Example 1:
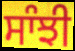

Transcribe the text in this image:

ਸਾੰਝੀ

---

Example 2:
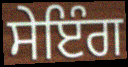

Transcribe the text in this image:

ਸੇਇੰਗ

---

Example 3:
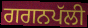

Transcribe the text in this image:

ਗਗਨਪੱਲੀ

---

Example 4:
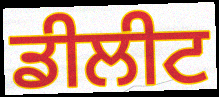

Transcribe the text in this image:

ਡੀਲੀਟ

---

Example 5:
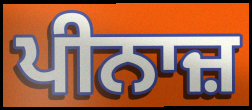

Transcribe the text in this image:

ਪੀਨਾਜ਼